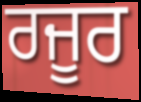
ਰਜੂਰ